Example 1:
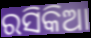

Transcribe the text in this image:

ରସିକିଆ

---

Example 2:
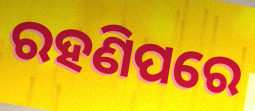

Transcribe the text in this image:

ରହଣିପରେ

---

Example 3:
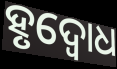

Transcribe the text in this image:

ହୃଦ୍ବୋଧ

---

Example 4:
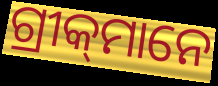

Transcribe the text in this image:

ଗ୍ରୀକ୍‌ମାନେ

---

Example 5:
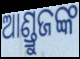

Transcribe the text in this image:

ଆଣ୍ଡ୍ରୁଜଙ୍କ